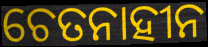
ଚେତନାହୀନ